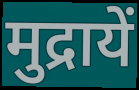
मुद्रायें